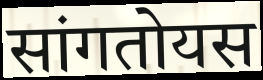
सांगतोयस